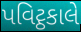
પવિટ્ઠકાલે